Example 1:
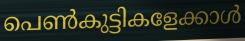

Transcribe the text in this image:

പെൺകുട്ടികളേക്കാൾ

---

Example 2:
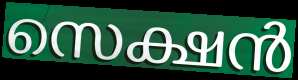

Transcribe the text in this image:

സെക്ഷൻ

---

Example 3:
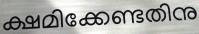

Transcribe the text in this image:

ക്ഷമിക്കേണ്ടതിനു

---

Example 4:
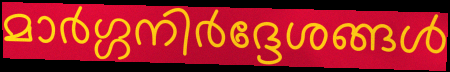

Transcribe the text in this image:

മാർഗ്ഗനിർദ്ദേശങ്ങൾ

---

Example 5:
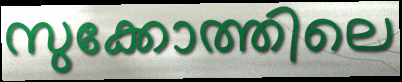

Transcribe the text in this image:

സുക്കോത്തിലെ